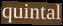
quintal